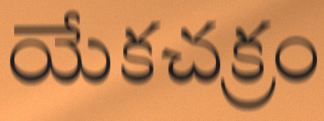
యేకచక్రం